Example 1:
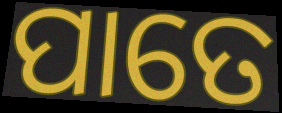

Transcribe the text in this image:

ପାତେ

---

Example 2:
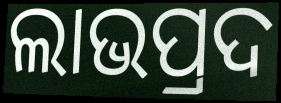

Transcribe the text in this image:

ଲାଭପ୍ରଦ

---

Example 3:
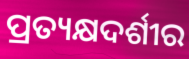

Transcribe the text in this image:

ପ୍ରତ୍ୟକ୍ଷଦର୍ଶୀର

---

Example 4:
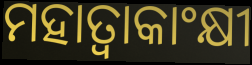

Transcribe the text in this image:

ମହାତ୍ୱାକାଂକ୍ଷୀ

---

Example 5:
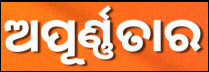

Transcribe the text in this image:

ଅପୂର୍ଣ୍ଣତାର